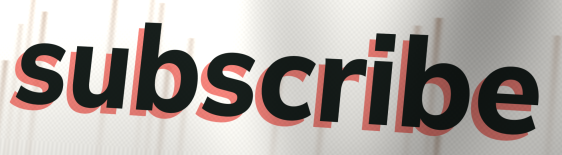
subscribe